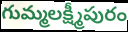
గుమ్మలక్ష్మీపురం